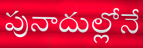
పునాదుల్లోనే